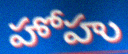
హోహు